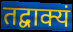
तद्वाक्यं